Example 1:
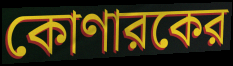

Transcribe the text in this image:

কোণারকের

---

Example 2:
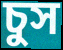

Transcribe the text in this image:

চুস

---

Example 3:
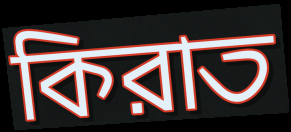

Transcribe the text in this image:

কিরাত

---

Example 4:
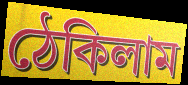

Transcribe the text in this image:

ঠেকিলাম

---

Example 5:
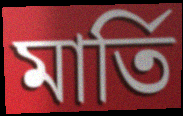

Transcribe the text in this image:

মার্তি